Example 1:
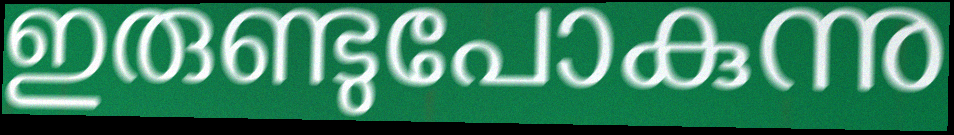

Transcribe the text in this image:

ഇരുണ്ടുപോകുന്നു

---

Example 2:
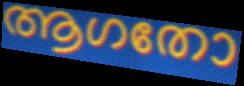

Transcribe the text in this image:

ആഗതോ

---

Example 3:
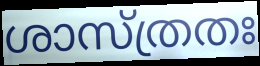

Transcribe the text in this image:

ശാസ്ത്രതഃ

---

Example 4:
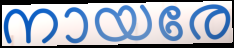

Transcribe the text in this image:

നായരേ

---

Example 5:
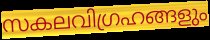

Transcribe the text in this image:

സകലവിഗ്രഹങ്ങളും